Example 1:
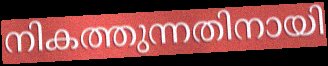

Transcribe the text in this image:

നികത്തുന്നതിനായി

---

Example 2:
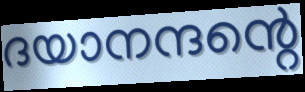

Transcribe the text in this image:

ദയാനന്ദന്റെ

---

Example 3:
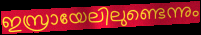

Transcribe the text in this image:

ഇസ്രായേലിലുണ്ടെന്നും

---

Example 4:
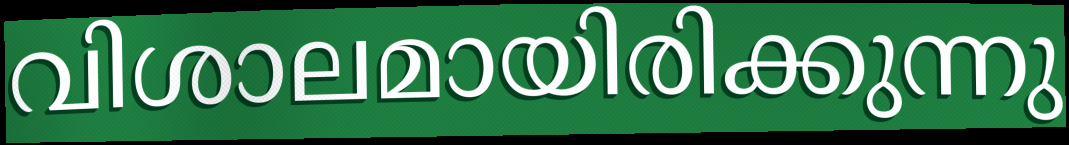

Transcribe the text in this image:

വിശാലമായിരിക്കുന്നു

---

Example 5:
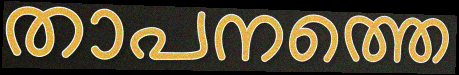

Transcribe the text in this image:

താപനത്തെ